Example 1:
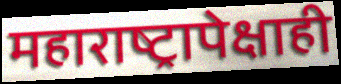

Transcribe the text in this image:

महाराष्ट्रापेक्षाही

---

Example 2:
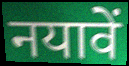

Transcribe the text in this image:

नयावें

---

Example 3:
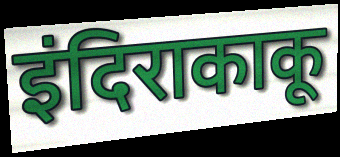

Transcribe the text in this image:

इंदिराकाकू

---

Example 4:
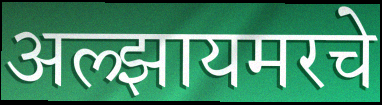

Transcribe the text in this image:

अल्झायमरचे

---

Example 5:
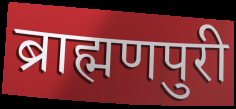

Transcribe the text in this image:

ब्राह्मणपुरी